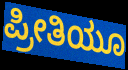
ಪ್ರೀತಿಯೂ